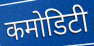
कमोडिटी